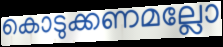
കൊടുക്കണമല്ലോ